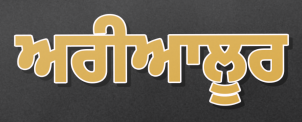
ਅਰੀਆਲੂਰ